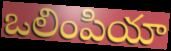
ఒలింపియా